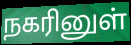
நகரினுள்